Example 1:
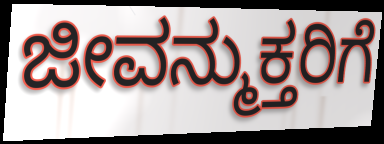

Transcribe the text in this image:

ಜೀವನ್ಮುಕ್ತರಿಗೆ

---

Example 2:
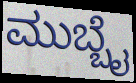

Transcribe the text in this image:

ಮುಬ್ಬೈ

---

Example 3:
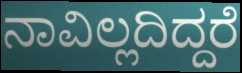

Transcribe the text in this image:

ನಾವಿಲ್ಲದಿದ್ದರೆ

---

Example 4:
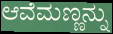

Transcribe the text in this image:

ಆವೆಮಣ್ಣನ್ನು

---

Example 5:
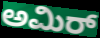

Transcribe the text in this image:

ಅಮಿರ್